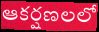
ఆకర్షణలలో